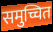
समुच्चित